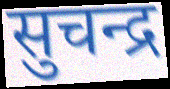
सुचन्द्र